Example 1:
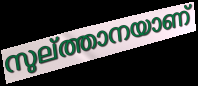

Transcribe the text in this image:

സുല്ത്താനയാണ്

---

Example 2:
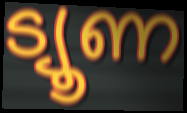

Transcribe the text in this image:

ട്യൂണ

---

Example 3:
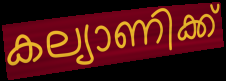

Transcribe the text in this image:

കല്യാണിക്ക്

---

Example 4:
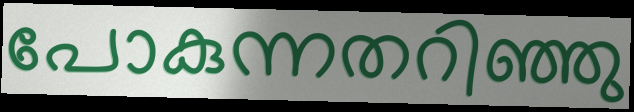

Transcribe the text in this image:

പോകുന്നതറിഞ്ഞു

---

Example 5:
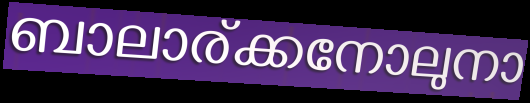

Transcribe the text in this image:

ബാലാര്ക്കനോലുനാ